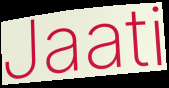
Jaati